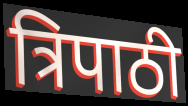
त्रिपाठी